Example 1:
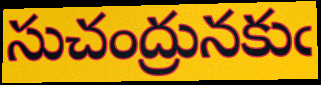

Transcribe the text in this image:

సుచంద్రునకుఁ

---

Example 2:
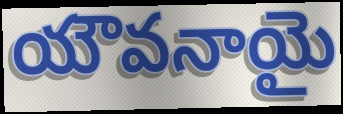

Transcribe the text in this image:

యౌవనాయై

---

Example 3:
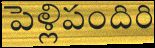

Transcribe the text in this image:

పెళ్లిపందిరి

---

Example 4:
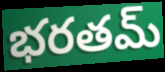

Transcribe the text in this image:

భరతమ్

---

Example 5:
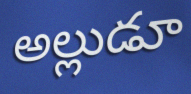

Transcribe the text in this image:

అల్లుడూ